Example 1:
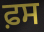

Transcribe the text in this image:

ਫ਼ਸ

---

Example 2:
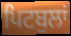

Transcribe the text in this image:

ਪਿਟਬੁਲਾਂ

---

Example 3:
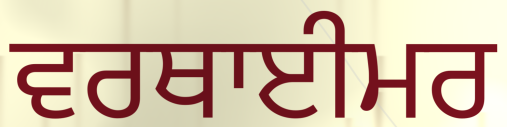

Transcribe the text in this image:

ਵਰਥਾਈਮਰ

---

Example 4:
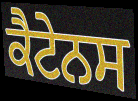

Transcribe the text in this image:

ਕੈਟੇਨਸ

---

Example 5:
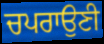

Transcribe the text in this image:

ਚਪਰਾਉਣੀ